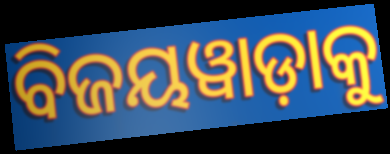
ବିଜୟୱାଡ଼ାକୁ